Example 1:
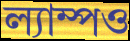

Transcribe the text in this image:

ল্যাম্পও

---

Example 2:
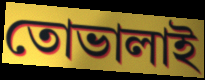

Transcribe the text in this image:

তোভালাই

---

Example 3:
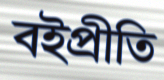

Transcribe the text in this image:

বইপ্রীতি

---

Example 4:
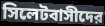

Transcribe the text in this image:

সিলেটবাসীদের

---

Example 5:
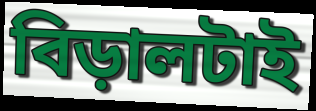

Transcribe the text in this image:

বিড়ালটাই